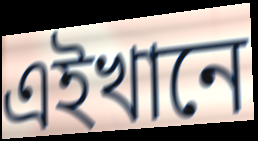
এইখানে